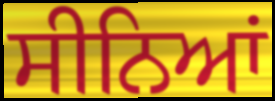
ਸੀਨਿਆਂ